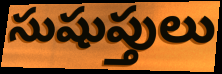
సుషుప్తులు